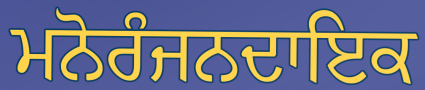
ਮਨੋਰੰਜਨਦਾਇਕ